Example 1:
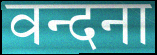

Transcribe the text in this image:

वन्दना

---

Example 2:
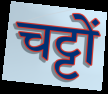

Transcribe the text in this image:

चट्टों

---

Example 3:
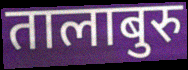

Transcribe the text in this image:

तालाबुरु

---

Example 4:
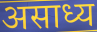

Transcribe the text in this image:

असाध्य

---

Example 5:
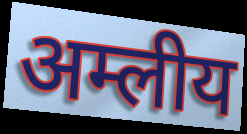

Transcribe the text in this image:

अम्लीय